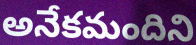
అనేకమందిని